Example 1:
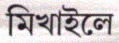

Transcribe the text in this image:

মিখাইলে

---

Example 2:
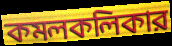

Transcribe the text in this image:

কমলকলিকার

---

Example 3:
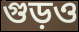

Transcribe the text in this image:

গুড়ও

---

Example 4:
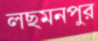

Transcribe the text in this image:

লছমনপুর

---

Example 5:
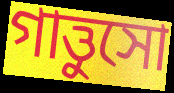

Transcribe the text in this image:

গাত্তুসো